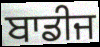
ਬਾਡੀਜ